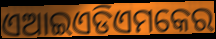
ଏଆଇଏଡିଏମକେର